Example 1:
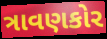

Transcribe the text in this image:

ત્રાવણકોર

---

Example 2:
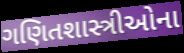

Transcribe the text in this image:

ગણિતશાસ્ત્રીઓના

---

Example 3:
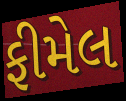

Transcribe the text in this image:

ફીમેલ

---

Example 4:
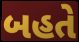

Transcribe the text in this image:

બહતે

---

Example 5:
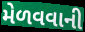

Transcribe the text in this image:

મેળવવાની